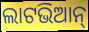
ଲାଟଭିଆନ୍